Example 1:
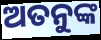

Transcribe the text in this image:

ଅତନୁଙ୍କ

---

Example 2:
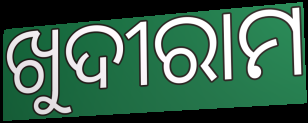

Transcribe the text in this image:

ଖୁଦୀରାମ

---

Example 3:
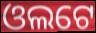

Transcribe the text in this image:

ଓଲଟେ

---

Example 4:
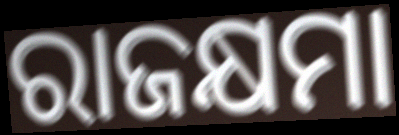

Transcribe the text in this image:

ରାଜକ୍ଷମା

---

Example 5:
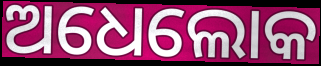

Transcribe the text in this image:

ଅଧେଲୋକ